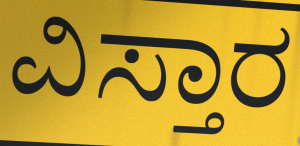
ವಿಸ್ತಾರ